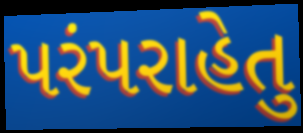
પરંપરાહેતુ